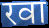
रवा